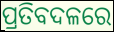
ପ୍ରତିବଦଳରେ